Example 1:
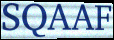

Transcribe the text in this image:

SQAAF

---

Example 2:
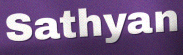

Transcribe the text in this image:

Sathyan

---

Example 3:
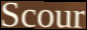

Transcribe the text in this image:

Scour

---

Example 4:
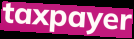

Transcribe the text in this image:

taxpayer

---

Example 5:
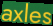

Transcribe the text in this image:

axles